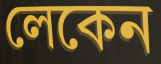
লেকেন